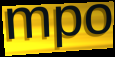
mpo